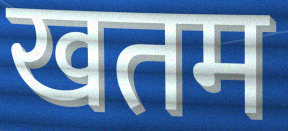
खतम